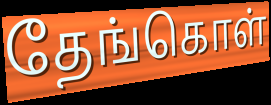
தேங்கொள்